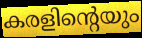
കരളിന്റെയും